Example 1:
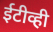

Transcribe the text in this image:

ईटीव्ही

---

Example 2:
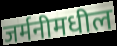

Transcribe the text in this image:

जर्मनीमधील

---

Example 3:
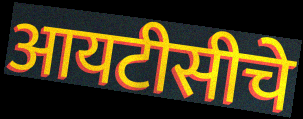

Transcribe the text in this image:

आयटीसीचे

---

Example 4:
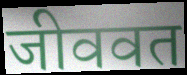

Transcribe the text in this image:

जीववत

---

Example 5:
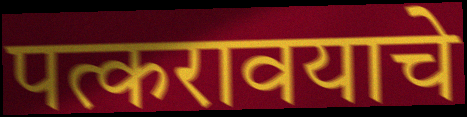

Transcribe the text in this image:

पत्करावयाचे